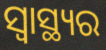
ସ୍ୱାସ୍ଥ୍ୟର